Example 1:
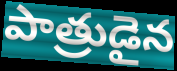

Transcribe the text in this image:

పాత్రుడైన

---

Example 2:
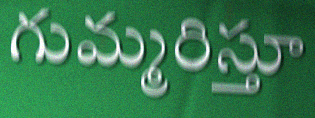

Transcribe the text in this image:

గుమ్మరిస్తూ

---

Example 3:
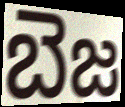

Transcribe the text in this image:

బెజ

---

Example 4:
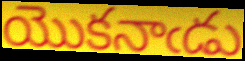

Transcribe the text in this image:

యొకనాఁడు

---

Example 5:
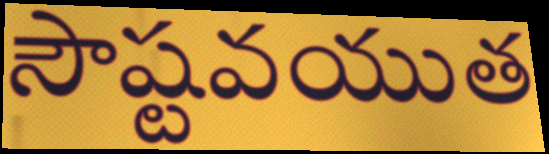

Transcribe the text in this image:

సౌష్టవయుత